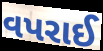
વપરાઈ